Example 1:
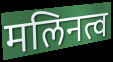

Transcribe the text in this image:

मलिनत्व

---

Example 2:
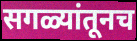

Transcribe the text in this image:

सगळ्यांतूनच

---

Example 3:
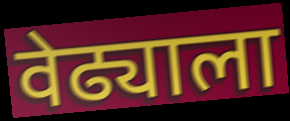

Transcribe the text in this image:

वेढ्याला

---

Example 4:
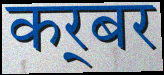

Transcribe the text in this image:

कर्बर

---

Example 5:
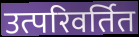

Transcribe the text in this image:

उत्परिवर्तित